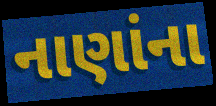
નાણાંના